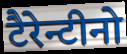
टैरेन्टीनो